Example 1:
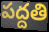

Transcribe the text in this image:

పద్దతి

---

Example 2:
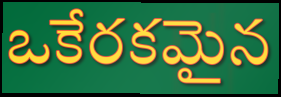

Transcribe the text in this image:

ఒకేరకమైన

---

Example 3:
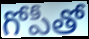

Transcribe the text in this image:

గోపీతో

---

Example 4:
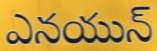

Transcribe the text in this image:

ఎనయున్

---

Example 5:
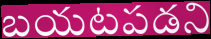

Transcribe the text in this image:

బయటపడని